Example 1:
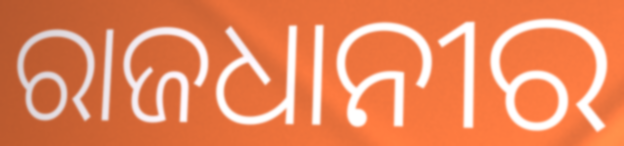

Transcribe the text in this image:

ରାଜଧାନୀର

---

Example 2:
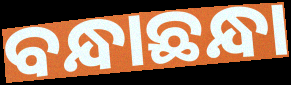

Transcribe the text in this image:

ବନ୍ଧାଛନ୍ଧା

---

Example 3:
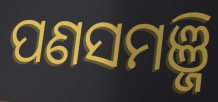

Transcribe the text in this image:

ପଣସମଞ୍ଜି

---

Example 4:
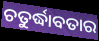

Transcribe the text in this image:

ଚତୁର୍ଦ୍ଧାବତାର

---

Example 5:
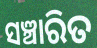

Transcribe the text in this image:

ସଞ୍ଚାରିତ